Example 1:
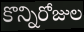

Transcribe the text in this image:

కొన్నిరోజుల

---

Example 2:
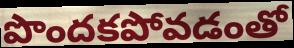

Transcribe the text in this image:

పొందకపోవడంతో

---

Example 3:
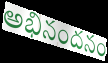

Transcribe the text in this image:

అభినందనం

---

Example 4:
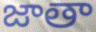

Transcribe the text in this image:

జాతా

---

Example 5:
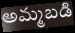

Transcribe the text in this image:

అమ్మబడి